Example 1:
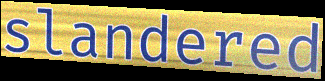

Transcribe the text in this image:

slandered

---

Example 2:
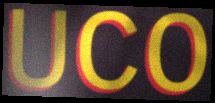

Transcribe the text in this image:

UCO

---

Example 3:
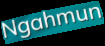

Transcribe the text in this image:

Ngahmun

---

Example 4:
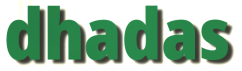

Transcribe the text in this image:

dhadas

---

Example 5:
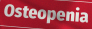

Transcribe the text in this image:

Osteopenia